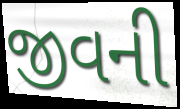
જીવની